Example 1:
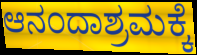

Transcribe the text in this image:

ಆನಂದಾಶ್ರಮಕ್ಕೆ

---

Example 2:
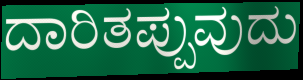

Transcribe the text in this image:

ದಾರಿತಪ್ಪುವುದು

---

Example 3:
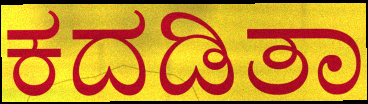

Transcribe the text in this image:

ಕದಡಿತಾ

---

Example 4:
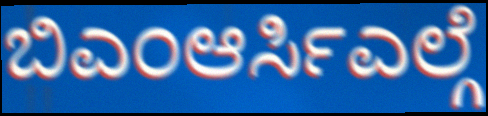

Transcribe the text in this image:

ಬಿಎಂಆರ್ಸಿಎಲ್ಗೆ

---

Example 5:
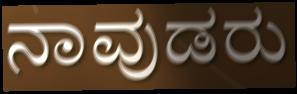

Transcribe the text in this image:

ನಾವುಡರು